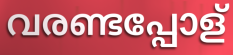
വരണ്ടപ്പോള്